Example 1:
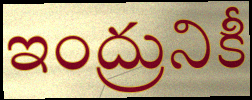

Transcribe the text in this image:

ఇంద్రునికీ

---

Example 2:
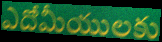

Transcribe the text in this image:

ఎదోమీయులకు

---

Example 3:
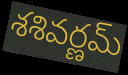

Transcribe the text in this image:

శశివర్ణమ్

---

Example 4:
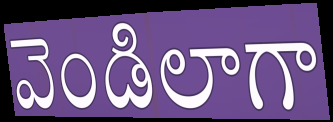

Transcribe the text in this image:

వెండిలాగా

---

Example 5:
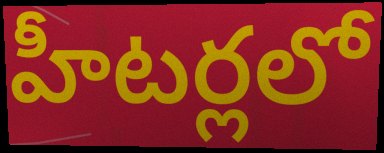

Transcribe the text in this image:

హీటర్లలో